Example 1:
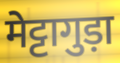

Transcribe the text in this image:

मेट्टागुड़ा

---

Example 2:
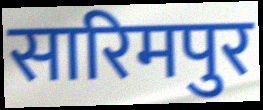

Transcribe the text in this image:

सारिमपुर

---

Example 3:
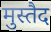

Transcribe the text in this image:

मुस्तैद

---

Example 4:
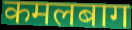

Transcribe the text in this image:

कमलबाग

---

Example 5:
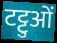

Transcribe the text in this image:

टट्टुओं